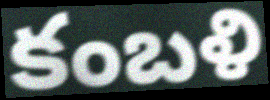
కంబళి